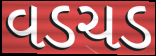
વડચડ